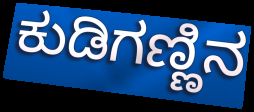
ಕುಡಿಗಣ್ಣಿನ